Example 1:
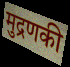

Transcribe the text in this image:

मुद्रणकी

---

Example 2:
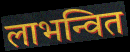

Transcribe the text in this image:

लाभन्वित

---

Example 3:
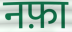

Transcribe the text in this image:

नफ़ा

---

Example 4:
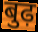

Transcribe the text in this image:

बुढ़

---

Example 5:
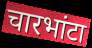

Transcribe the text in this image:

चारभांटा